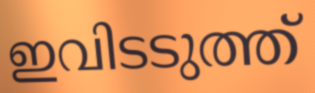
ഇവിടടുത്ത്